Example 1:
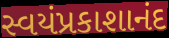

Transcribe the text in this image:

સ્વયંપ્રકાશાનંદ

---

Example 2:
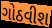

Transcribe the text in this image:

ગોઠવીશ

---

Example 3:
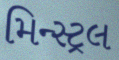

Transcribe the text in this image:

મિન્સ્ટ્રલ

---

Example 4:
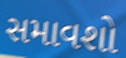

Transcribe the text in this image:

સમાવશો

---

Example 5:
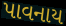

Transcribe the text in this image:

પાવનાય